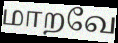
மாறவே